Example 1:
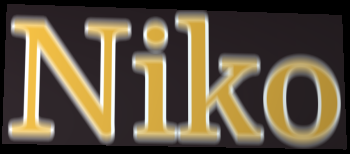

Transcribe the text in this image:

Niko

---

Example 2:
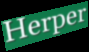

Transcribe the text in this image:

Herper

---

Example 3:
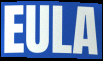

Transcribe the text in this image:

EULA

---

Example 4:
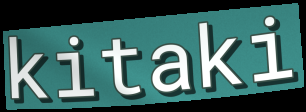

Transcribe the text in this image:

kitaki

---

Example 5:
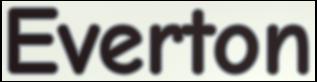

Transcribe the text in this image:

Everton